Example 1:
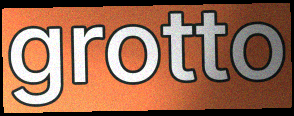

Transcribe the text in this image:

grotto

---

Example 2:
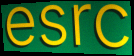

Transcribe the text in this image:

esrc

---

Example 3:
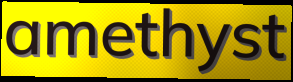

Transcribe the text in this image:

amethyst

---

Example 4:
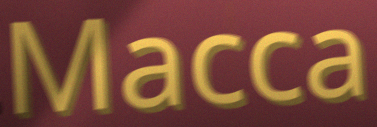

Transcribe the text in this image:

Macca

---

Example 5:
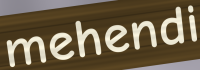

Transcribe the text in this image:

mehendi